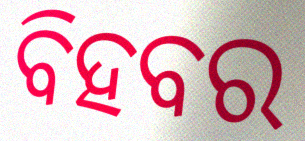
ବିହବର